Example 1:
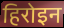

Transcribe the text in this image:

हिरोइन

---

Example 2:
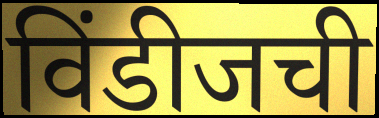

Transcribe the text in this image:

विंडीजची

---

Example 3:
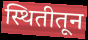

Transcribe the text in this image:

स्थितीतून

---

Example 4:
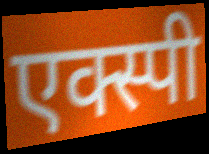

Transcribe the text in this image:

एक्स्पी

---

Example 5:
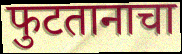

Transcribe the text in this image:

फुटतानाचा